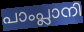
പാംപ്ലാനി